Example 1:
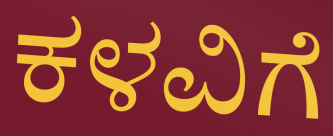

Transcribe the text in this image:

ಕಳವಿಗೆ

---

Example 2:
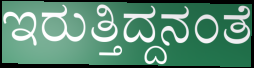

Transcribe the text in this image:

ಇರುತ್ತಿದ್ದನಂತೆ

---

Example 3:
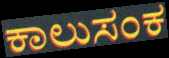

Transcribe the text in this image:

ಕಾಲುಸಂಕ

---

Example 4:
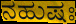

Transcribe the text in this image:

ನಹುಷಃ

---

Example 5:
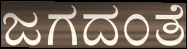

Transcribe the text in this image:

ಜಗದಂತೆ